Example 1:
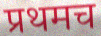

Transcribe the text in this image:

प्रथमच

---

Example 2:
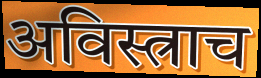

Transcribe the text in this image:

अविस्त्राच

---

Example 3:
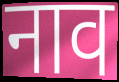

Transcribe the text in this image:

नाव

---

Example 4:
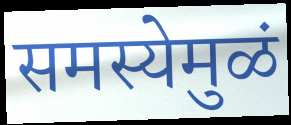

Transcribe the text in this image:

समस्येमुळं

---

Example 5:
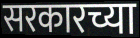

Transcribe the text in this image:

सरकारच्या